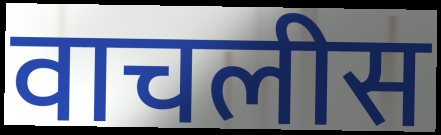
वाचलीस